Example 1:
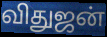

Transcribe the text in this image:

விதுஜன்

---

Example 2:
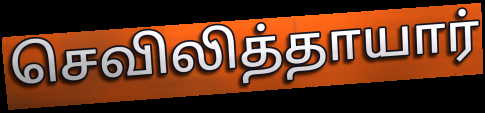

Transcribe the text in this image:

செவிலித்தாயார்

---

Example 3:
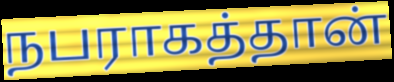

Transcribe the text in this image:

நபராகத்தான்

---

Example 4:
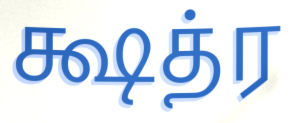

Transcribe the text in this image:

க்ஷத்ர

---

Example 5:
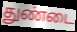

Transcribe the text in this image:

துண்டை